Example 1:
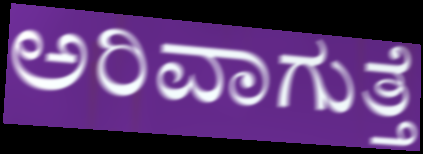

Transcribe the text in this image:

ಅರಿವಾಗುತ್ತೆ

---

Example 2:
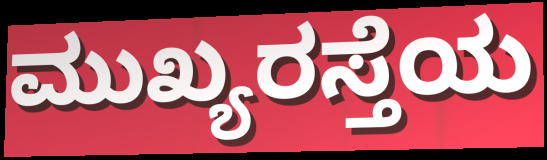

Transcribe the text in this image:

ಮುಖ್ಯರಸ್ತೆಯ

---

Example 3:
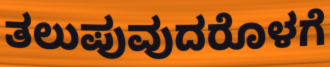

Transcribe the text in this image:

ತಲುಪುವುದರೊಳಗೆ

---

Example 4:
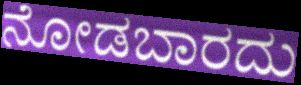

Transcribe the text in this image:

ನೋಡಬಾರದು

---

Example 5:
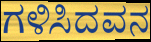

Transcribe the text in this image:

ಗಳಿಸಿದವನ